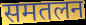
समतलन